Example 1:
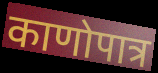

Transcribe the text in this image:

काणोपात्र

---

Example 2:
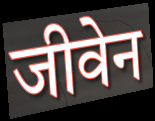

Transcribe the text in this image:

जीवेन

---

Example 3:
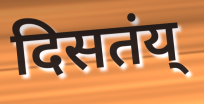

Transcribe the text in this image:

दिसतंय्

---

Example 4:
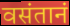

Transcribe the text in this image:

वसंतानं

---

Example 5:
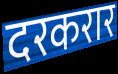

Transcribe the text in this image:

दरकरार